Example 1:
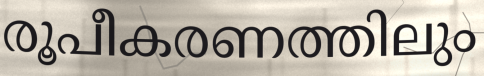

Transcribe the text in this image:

രൂപീകരണത്തിലും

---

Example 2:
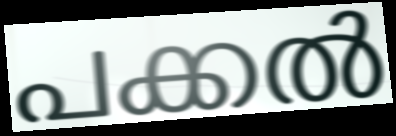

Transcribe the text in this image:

പക്കൽ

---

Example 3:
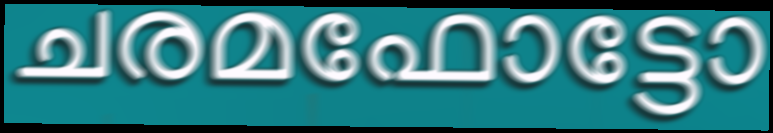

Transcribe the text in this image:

ചരമഫോട്ടോ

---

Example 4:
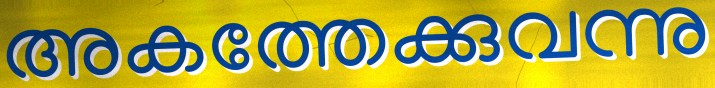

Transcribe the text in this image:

അകത്തേക്കുവന്നു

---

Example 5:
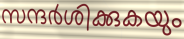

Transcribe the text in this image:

സന്ദർശിക്കുകയും